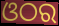
ଓଠର